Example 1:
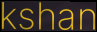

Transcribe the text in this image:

kshan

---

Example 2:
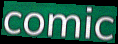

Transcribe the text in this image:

comic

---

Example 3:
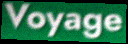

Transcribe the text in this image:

Voyage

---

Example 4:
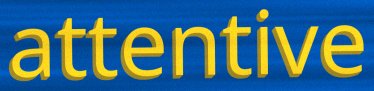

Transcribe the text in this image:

attentive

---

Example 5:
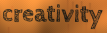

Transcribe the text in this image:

creativity